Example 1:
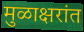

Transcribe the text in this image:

मुळाक्षरांत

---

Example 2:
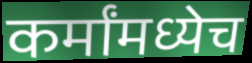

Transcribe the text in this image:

कर्मांमध्येच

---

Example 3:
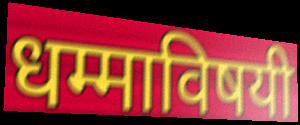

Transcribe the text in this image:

धम्माविषयी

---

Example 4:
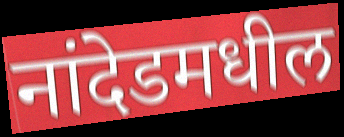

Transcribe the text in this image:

नांदेडमधील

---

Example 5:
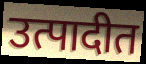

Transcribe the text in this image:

उत्पादीत